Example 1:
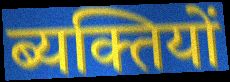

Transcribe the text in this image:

ब्यक्तियों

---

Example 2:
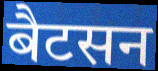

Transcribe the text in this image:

बैटसन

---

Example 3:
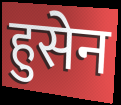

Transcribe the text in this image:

हुसेन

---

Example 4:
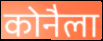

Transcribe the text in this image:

कोनैला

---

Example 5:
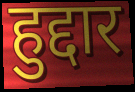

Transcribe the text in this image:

हुद्दार